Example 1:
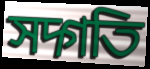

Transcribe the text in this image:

সদ্গতি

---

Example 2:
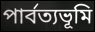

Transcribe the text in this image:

পার্বত্যভূমি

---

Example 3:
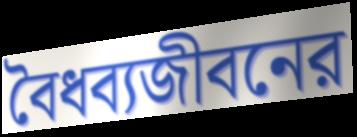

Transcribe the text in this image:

বৈধব্যজীবনের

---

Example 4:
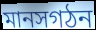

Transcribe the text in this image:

মানসগঠন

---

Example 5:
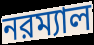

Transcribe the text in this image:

নরম্যাল